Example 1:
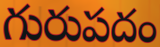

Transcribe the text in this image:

గురుపదం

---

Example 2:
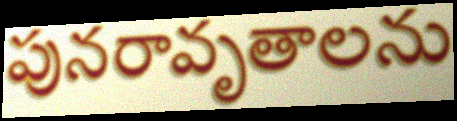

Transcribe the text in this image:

పునరావృతాలను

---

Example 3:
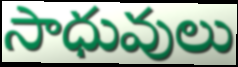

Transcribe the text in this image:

సాధువులు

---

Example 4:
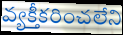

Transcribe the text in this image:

వ్యక్తీకరించలేని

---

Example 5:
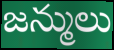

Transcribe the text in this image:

జన్ములు